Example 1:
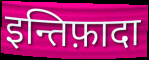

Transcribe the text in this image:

इन्तिफ़ादा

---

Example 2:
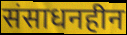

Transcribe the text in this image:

संसाधनहीन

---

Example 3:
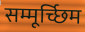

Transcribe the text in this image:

सम्मूर्च्छिम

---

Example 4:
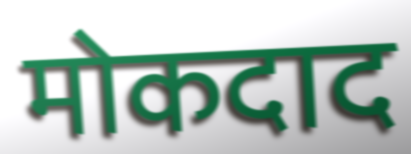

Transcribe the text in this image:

मोकदाद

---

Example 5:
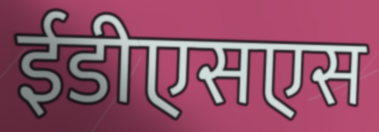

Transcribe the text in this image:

ईडीएसएस